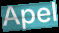
Apel